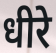
धीरे